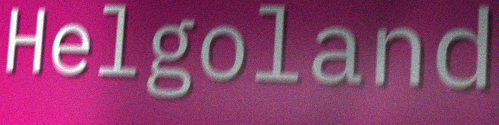
Helgoland